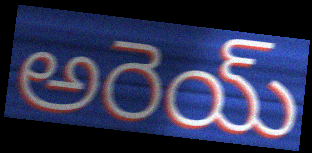
అరెయ్